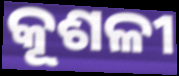
କୂଶଳୀ